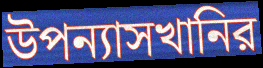
উপন্যাসখানির